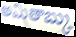
అమితాబ్కు